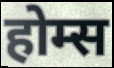
होम्स